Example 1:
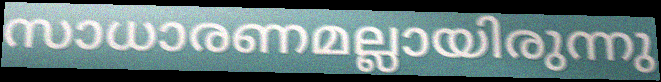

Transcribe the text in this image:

സാധാരണമല്ലായിരുന്നു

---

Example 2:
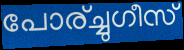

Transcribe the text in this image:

പോര്ച്ചുഗീസ്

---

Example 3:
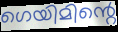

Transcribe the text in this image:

ഗെയിമിന്റെ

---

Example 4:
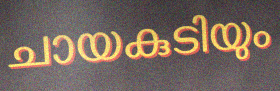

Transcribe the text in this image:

ചായകുടിയും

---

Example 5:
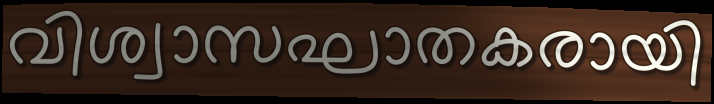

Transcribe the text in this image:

വിശ്വാസഘാതകരായി